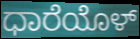
ಧಾರೆಯೊಳ್